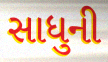
સાધુની